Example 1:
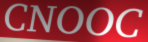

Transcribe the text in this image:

CNOOC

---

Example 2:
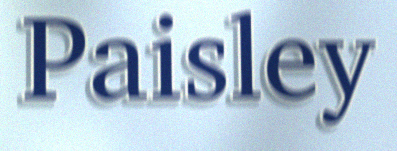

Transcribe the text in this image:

Paisley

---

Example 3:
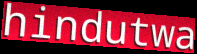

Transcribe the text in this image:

hindutwa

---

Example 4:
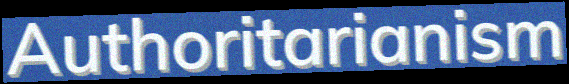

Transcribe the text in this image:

Authoritarianism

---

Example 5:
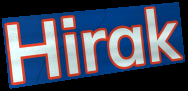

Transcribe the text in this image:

Hirak